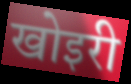
खोइरी